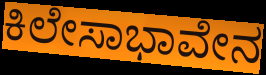
ಕಿಲೇಸಾಭಾವೇನ